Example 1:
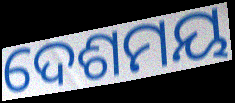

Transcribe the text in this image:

ଦେଶମୟ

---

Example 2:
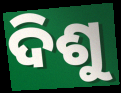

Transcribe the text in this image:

ଦିଶୁ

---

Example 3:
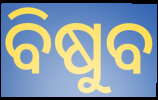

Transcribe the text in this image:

ବିଷୁବ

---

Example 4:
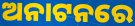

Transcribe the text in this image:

ଅନାଟନରେ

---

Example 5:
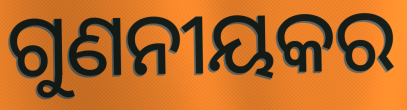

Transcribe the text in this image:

ଗୁଣନୀୟକର